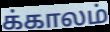
க்காலம்